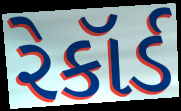
રેકૉર્ડ